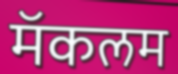
मॅकलम